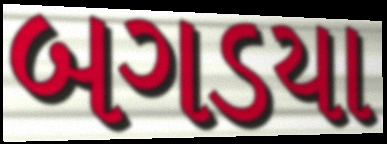
બગડયા